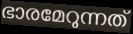
ഭാരമേറുന്നത്